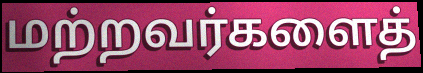
மற்றவர்களைத்